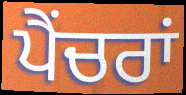
ਪੈਂਚਰਾਂ